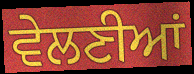
ਵੇਲਣੀਆਂ